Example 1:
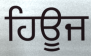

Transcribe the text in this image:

ਹਿਊਜ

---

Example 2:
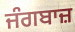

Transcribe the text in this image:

ਜੰਗਬਾਜ਼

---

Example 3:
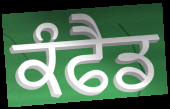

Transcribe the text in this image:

ਕੰਫੈਡ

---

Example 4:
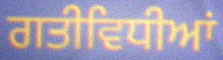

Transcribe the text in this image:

ਗਤੀਵਿਧੀਆਂ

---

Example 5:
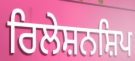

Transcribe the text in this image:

ਰਿਲੇਸ਼ਨਸ਼ਿਪ